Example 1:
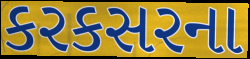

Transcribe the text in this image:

કરકસરના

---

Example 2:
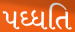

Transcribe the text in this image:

પઘ્ધતિ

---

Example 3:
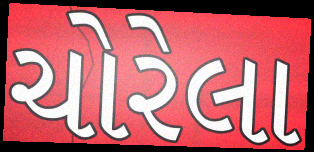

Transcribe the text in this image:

ચોરેલા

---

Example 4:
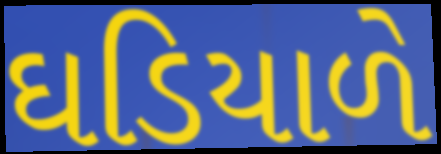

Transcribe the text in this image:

ઘડિયાળે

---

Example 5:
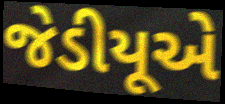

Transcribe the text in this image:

જેડીયૂએ